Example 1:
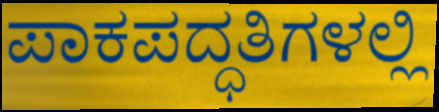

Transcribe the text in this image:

ಪಾಕಪದ್ಧತಿಗಳಲ್ಲಿ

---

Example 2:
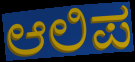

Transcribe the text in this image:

ಆಲಿಪ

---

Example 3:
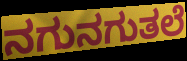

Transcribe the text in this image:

ನಗುನಗುತಲೆ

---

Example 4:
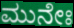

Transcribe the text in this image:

ಮುನೇಃ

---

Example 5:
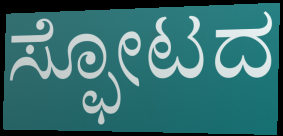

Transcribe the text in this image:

ಸ್ಫೋಟದ